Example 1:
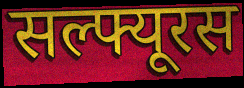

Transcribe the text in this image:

सल्फ्यूरस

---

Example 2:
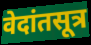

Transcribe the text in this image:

वेदांतसूत्र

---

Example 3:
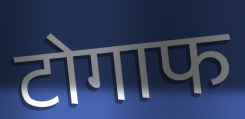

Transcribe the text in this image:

टोगाफ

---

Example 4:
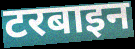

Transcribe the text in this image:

टरबाइन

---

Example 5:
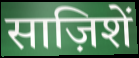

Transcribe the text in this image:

साज़िशें